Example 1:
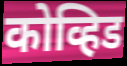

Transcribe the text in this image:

कोव्हिड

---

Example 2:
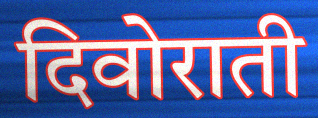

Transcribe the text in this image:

दिवोराती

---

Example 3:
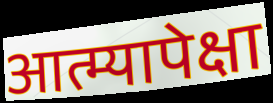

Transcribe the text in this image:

आत्म्यापेक्षा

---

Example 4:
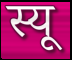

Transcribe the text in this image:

स्यू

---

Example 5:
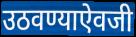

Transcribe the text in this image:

उठवण्याऐवजी